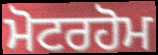
ਮੋਟਰਹੋਮ